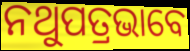
ନଥୁପତ୍ରଭାବେ